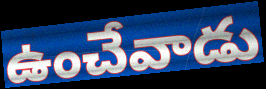
ఉంచేవాడు